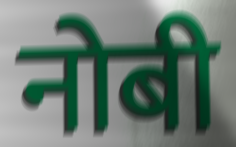
नोबी